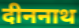
दीननाथ